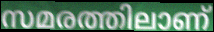
സമരത്തിലാണ്